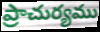
ప్రాచుర్యము